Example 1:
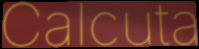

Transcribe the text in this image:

Calcuta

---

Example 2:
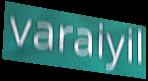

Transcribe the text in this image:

varaiyil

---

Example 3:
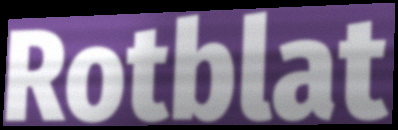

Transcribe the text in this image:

Rotblat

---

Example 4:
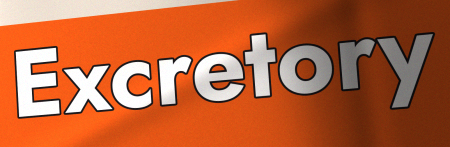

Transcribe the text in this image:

Excretory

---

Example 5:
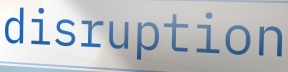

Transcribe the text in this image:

disruption